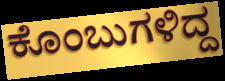
ಕೊಂಬುಗಳಿದ್ದ